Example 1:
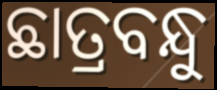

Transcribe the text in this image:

ଛାତ୍ରବନ୍ଧୁ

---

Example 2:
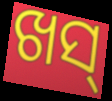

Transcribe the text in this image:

ଖସ୍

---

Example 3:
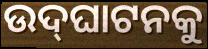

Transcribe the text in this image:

ଉଦ୍‌ଘାଟନକୁ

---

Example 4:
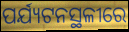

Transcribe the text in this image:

ପର୍ଯ୍ୟଟନସ୍ଥଳୀରେ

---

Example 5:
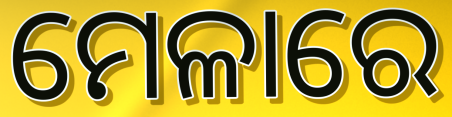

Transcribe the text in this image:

ମେଳାରେ